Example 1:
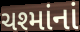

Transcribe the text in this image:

ચશ્માંનાં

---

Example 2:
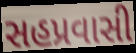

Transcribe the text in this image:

સહપ્રવાસી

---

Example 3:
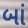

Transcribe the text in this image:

બાં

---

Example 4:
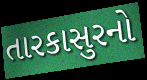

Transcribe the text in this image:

તારકાસુરનો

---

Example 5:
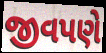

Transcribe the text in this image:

જીવપણે